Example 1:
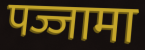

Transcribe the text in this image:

पज्जामा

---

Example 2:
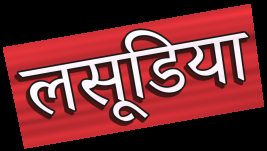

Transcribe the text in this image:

लसूडिया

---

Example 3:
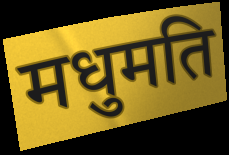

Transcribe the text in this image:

मधुमति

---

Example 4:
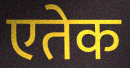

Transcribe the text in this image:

एतेक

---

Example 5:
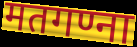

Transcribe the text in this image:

मतगण्ना